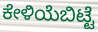
ಕೇಳಿಯೆಬಿಟ್ಟೆ